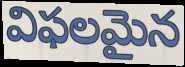
విఫలమైన